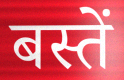
बस्तें